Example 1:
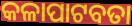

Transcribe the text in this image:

କଳାପାଟବତା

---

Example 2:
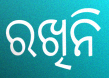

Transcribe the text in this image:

ରଖିନି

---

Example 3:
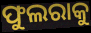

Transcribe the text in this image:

ଫୁଲରାକୁ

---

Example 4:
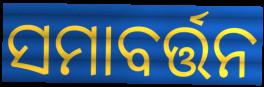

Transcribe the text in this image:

ସମାବର୍ତ୍ତନ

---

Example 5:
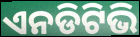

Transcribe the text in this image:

ଏନଡିଟିଭି